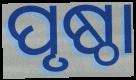
ପୃଷ୍ଠା